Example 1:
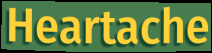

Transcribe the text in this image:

Heartache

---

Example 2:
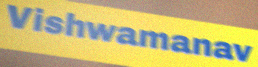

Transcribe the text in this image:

Vishwamanav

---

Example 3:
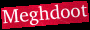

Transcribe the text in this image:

Meghdoot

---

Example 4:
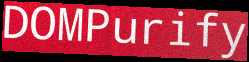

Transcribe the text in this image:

DOMPurify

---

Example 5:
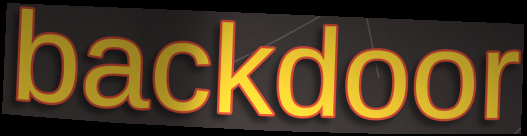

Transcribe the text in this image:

backdoor